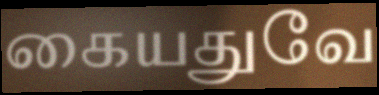
கையதுவே